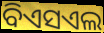
ବିଏସଏଲ